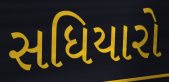
સધિયારો